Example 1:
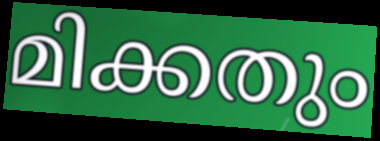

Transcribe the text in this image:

മിക്കതും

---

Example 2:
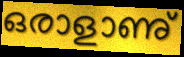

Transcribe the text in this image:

ഒരാളാണു്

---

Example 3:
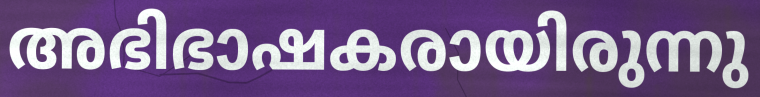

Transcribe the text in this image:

അഭിഭാഷകരായിരുന്നു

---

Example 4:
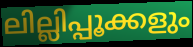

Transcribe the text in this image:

ലില്ലിപ്പൂക്കളും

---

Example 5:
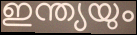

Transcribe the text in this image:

ഇന്ത്യയും